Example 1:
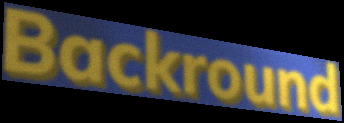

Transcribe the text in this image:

Backround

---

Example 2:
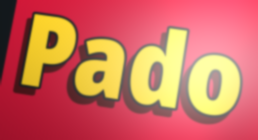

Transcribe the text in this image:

Pado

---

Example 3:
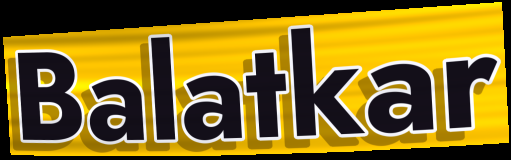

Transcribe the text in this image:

Balatkar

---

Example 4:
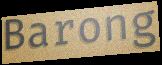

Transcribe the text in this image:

Barong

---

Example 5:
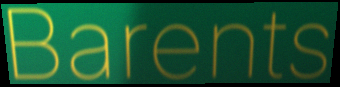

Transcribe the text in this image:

Barents